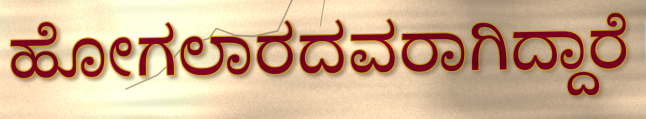
ಹೋಗಲಾರದವರಾಗಿದ್ದಾರೆ